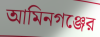
আমিনগঞ্জের